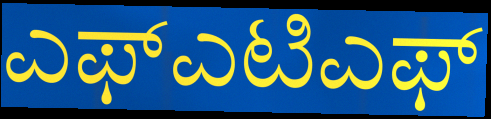
ಎಫ್ಎಟಿಎಫ್